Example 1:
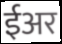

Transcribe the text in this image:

ईअर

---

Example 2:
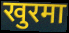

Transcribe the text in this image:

खुरमा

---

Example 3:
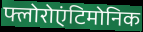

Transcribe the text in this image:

फ्लोरोएंटिमोनिक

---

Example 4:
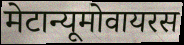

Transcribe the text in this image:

मेटान्यूमोवायरस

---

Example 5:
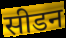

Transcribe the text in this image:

सीडन